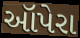
ઑપેરા